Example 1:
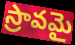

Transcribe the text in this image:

స్రావమై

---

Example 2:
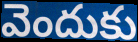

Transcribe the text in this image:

వెందుకు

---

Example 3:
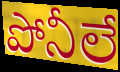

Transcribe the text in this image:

పోనీలే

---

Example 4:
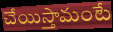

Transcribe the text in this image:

చేయిస్తామంటే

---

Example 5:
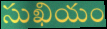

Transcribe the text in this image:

సుఖియం